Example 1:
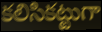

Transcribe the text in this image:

కలిసికట్టుగా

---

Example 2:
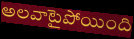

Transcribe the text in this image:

అలవాటైపోయింది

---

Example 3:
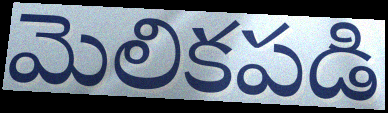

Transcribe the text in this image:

మెలికపడి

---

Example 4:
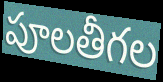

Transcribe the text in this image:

పూలతీగల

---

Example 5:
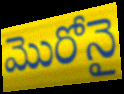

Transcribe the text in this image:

మొరోనై